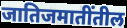
जातिजमातींतील